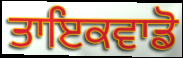
ਤਾਇਕਵਾਡੋ